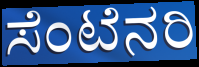
ಸೆಂಟೆನರಿ